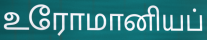
உரோமானியப்